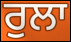
ਰੁਲਾ